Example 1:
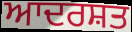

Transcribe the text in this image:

ਆਦਰਸ਼ਤ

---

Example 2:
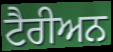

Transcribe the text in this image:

ਟੈਰੀਅਨ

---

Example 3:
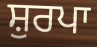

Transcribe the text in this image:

ਸ਼ੁਰਪਾ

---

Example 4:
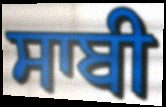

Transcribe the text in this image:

ਸਾਬੀ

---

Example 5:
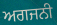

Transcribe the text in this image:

ਅਗਜਨੀ